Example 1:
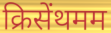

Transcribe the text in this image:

क्रिसेंथमम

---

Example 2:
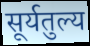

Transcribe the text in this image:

सूर्यतुल्य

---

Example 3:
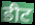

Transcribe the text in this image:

डीट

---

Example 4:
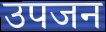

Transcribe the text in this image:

उपजन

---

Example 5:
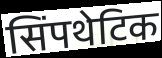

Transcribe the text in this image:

सिंपथेटिक